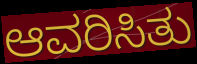
ಆವರಿಸಿತು